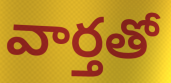
వార్తతో